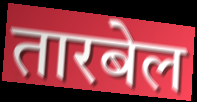
तारबेल